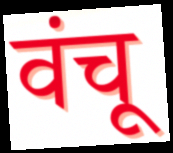
वंचू